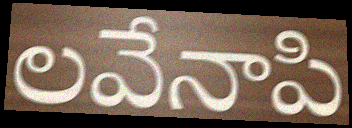
లవేనాపి